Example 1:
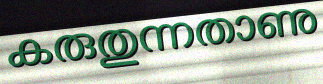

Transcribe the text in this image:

കരുതുന്നതാണു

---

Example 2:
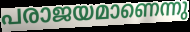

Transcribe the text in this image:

പരാജയമാണെന്നു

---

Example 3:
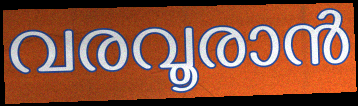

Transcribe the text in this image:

വരവൂരാൻ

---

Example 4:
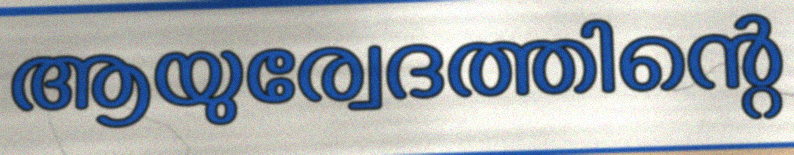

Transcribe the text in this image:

ആയുര്വേദത്തിന്റെ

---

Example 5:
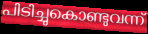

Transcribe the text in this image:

പിടിച്ചുകൊണ്ടുവന്ന്